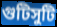
গুটিসুটি